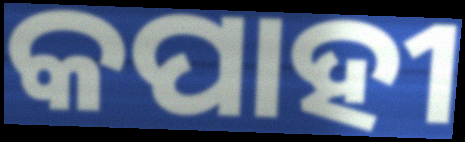
କପାହୀ